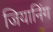
जियानिंग